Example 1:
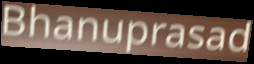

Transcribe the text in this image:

Bhanuprasad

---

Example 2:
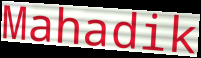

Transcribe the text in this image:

Mahadik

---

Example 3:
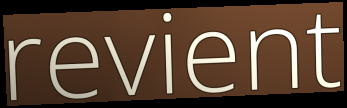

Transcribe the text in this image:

revient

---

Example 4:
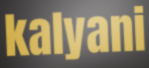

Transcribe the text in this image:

kalyani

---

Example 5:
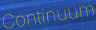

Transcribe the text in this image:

Continuum